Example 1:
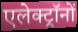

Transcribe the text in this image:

एलेक्ट्रॉनों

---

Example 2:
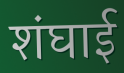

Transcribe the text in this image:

शंघाई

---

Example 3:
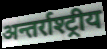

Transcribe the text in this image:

अन्तर्राश्ट्रीय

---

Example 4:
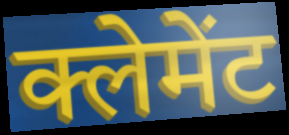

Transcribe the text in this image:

क्लेमेंट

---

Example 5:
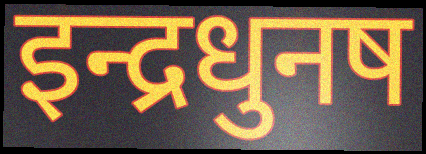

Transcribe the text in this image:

इन्द्रधुनष